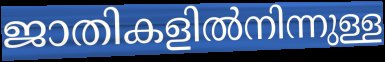
ജാതികളിൽനിന്നുള്ള